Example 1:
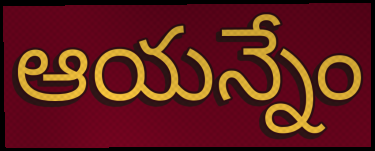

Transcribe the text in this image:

ఆయన్నేం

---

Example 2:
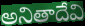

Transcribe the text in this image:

అనితాదేవి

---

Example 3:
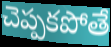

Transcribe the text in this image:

చెప్పకపోతే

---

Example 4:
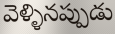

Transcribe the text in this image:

వెళ్ళినప్పుడు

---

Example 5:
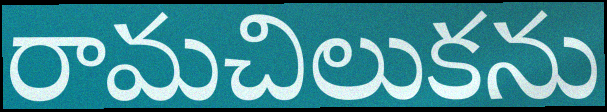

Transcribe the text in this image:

రామచిలుకను